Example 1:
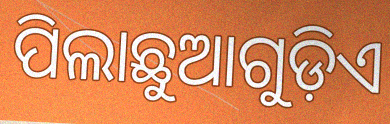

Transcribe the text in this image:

ପିଲାଛୁଆଗୁଡ଼ିଏ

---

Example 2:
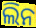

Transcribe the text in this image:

ଲିନ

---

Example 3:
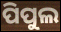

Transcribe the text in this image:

ପିପୁଲ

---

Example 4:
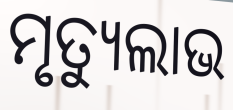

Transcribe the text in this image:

ମୃତ୍ୟୁଲାଭ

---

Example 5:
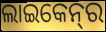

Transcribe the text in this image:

ଲାଇକେନ୍‌ର